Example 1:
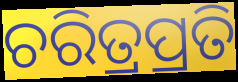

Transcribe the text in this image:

ଚରିତ୍ରପ୍ରତି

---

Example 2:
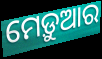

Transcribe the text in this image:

ମେଡ଼ୁଆର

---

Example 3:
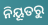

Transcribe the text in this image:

ନିୟୂତରୁ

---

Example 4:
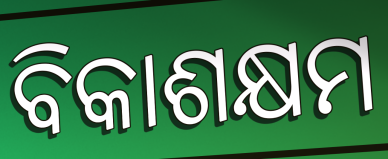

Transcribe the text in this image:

ବିକାଶକ୍ଷମ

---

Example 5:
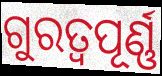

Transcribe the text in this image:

ଗୁରତ୍ୱପୂର୍ଣ୍ଣ